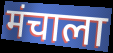
मंचाला